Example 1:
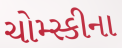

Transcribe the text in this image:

ચોમ્સ્કીના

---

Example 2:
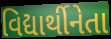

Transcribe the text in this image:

વિદ્યાર્થીનેતા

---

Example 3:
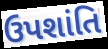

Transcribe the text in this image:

ઉપશાંતિ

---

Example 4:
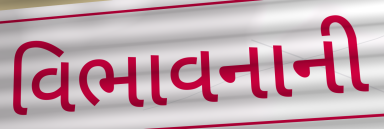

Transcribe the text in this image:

વિભાવનાની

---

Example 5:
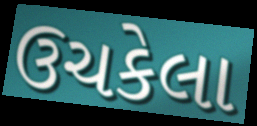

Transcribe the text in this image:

ઉચકેલા